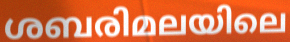
ശബരിമലയിലെ